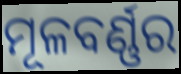
ମୂଳବର୍ଣ୍ଣର